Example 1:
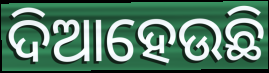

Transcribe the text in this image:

ଦିଆହେଉଛି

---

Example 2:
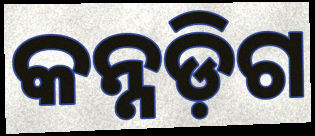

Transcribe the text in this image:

କନ୍ନଡ଼ିଗ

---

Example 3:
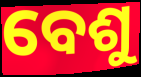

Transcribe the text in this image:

ବେଶୁ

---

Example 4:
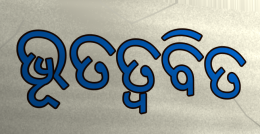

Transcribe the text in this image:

ଭୂତତ୍ଵବିତ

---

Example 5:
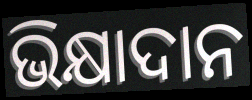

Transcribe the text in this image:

ଭିକ୍ଷାଦାନ